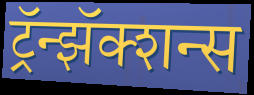
ट्रॅन्झॅक्शन्स